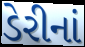
ડેરીનાં